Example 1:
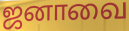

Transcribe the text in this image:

ஜனாவை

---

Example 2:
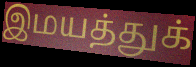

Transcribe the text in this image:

இமயத்துக்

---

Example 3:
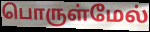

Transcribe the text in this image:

பொருள்மேல்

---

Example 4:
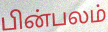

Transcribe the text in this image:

பின்பலம்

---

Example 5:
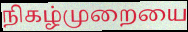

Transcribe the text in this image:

நிகழ்முறையை